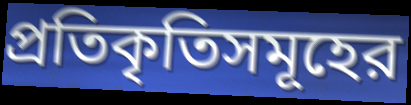
প্রতিকৃতিসমূহের